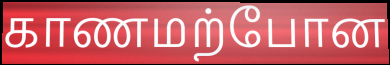
காணமற்போன